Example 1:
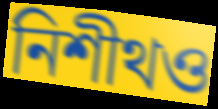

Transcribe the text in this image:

নিশীথও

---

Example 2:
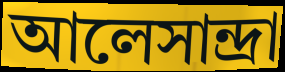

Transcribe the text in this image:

আলেসান্দ্রা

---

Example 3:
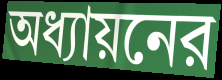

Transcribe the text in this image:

অধ্যায়নের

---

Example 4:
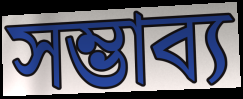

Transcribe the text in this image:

সম্ভাব্য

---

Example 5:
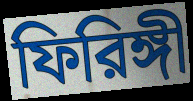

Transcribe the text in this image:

ফিরিঙ্গী